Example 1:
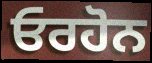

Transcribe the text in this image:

ਓਰਹੋਨ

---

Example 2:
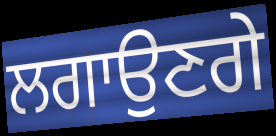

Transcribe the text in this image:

ਲਗਾਉਣਗੇ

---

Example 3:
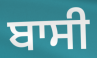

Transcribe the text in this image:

ਬਾਸੀ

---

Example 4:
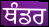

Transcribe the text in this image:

ਥੰਡਰ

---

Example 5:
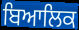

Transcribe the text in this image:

ਬਿਆਲਿਕ